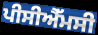
ਪੀਸੀਐੱਮਸੀ